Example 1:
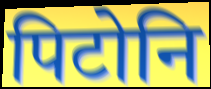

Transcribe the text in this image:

पिटोनि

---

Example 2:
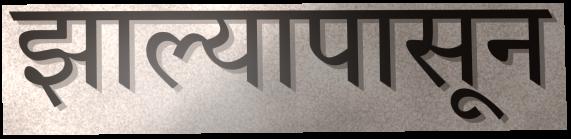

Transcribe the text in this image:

झाल्यापासून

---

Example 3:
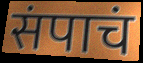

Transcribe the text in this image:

संपाचं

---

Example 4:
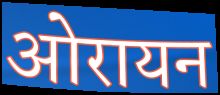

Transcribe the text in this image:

ओरायन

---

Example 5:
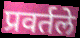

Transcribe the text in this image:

प्रवर्तले